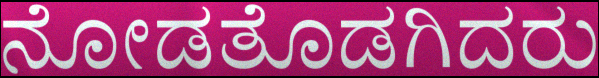
ನೋಡತೊಡಗಿದರು